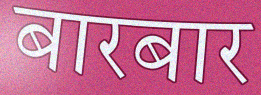
बारबार